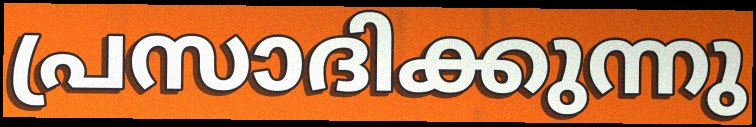
പ്രസാദിക്കുന്നു